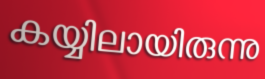
കയ്യിലായിരുന്നു